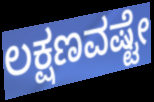
ಲಕ್ಷಣವಷ್ಟೇ